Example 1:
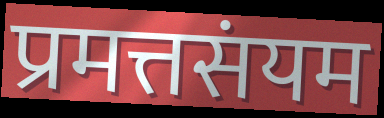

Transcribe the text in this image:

प्रमत्तसंयम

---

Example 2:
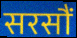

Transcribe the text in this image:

सरसौं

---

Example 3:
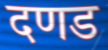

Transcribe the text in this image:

दणड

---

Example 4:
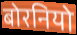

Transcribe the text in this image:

बोरनियो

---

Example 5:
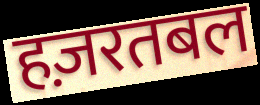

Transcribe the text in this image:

हज़रतबल